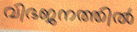
വിഭജനത്തിൽ